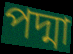
পদ্মা